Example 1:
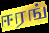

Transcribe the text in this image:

ஈரங்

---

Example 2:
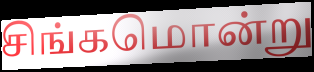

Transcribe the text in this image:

சிங்கமொன்று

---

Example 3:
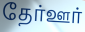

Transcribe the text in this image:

தேர்ஊர்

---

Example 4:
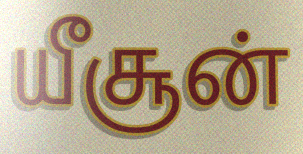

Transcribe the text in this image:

யீசூன்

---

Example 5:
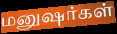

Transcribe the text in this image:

மனுஷர்கள்